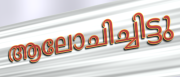
ആലോചിച്ചിട്ടു